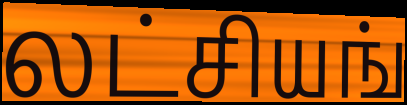
லட்சியங்